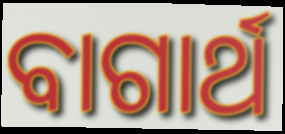
ବାଗାର୍ଥ